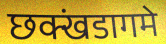
छक्खंडागमे